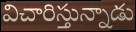
విచారిస్తున్నాడు